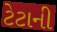
ટેટાની